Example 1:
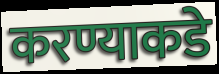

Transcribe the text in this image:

करण्याकडे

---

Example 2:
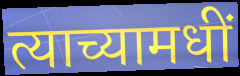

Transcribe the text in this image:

त्याच्यामधीं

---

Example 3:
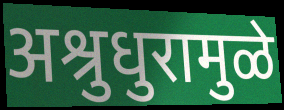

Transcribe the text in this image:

अश्रुधुरामुळे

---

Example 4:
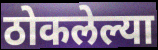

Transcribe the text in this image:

ठोकलेल्या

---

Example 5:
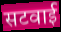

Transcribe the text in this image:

सटवाई